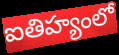
ఐతిహ్యంలో